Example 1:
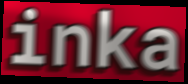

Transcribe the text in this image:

inka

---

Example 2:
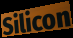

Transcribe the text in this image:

Silicon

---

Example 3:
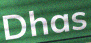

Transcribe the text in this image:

Dhas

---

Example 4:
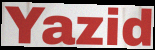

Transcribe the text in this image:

Yazid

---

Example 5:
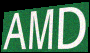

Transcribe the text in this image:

AMD